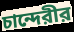
চান্দেরীর